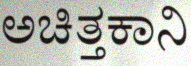
ಅಚಿತ್ತಕಾನಿ